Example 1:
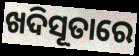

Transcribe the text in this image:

ଖଦିସୂତାରେ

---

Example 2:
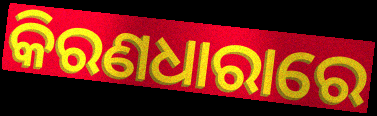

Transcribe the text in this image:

କିରଣଧାରାରେ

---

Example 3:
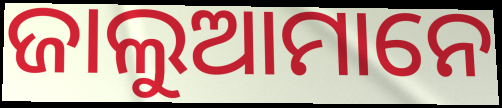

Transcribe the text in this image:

ଜାଲୁଆମାନେ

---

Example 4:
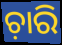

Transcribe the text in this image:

ଚ଼ାରି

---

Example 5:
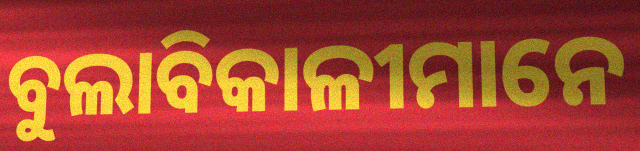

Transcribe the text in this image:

ବୁଲାବିକାଳୀମାନେ